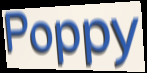
Poppy